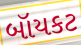
બૉયકટ